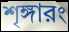
শৃঙ্গারং